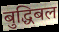
बुद्धिबल